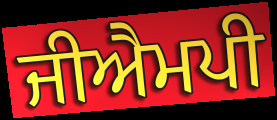
ਜੀਐਮਪੀ